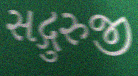
સદ્ગુરુજી